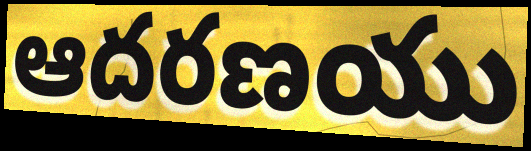
ఆదరణయు